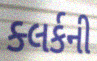
ક્લર્કની